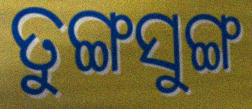
ତୁଙ୍ଗସୁଙ୍ଗ